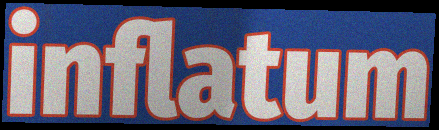
inflatum